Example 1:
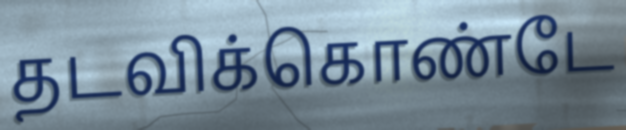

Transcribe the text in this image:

தடவிக்கொண்டே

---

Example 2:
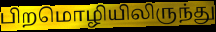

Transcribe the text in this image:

பிறமொழியிலிருந்து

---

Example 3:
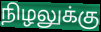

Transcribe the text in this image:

நிழலுக்கு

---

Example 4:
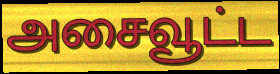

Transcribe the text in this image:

அசைவூட்ட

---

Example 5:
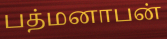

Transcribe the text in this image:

பத்மனாபன்